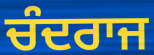
ਚੰਦਰਾਜ